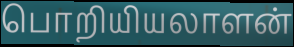
பொறியியலாளன்